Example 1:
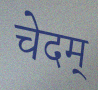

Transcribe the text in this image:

चेदम्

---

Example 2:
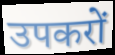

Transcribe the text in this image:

उपकरों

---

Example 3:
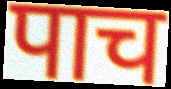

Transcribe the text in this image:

पाच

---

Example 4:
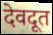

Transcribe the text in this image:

देवदूत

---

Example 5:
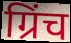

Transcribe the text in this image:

ग्रिंच